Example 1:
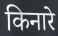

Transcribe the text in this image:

किनारे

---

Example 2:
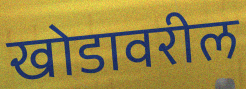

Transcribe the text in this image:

खोडावरील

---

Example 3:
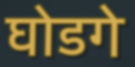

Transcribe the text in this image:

घोडगे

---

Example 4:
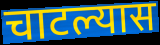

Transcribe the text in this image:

चाटल्यास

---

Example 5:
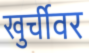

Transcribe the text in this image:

खुर्चीवर